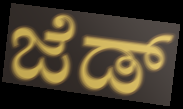
ಜೆಡ್